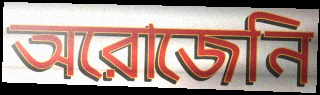
অরোজেনি